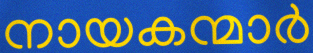
നായകന്മാർ